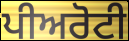
ਪੀਅਰੋਟੀ